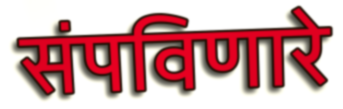
संपविणारे